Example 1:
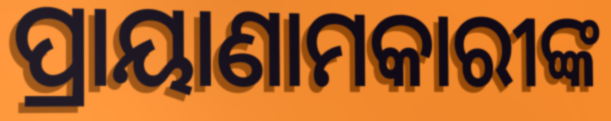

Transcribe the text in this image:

ପ୍ରାୟାଣାମକାରୀଙ୍କ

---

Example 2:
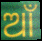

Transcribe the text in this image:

ଆଁ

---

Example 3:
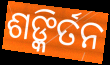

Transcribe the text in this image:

ଶଙ୍କିର୍ତନ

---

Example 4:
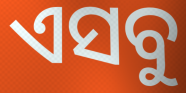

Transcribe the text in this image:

ଏସବୁ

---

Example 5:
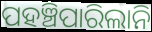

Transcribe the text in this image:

ପହଞ୍ଚିପାରିଲାନି